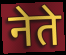
नेते